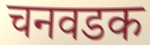
चनवडक